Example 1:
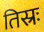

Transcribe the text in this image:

तिस्रः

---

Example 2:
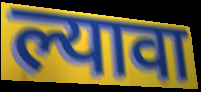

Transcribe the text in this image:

ल्यावा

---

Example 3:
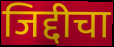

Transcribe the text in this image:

जिद्दीचा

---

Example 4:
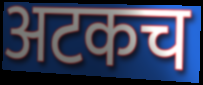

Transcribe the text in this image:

अटकच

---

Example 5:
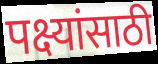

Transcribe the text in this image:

पक्ष्यांसाठी